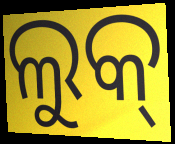
ଲୁକ୍